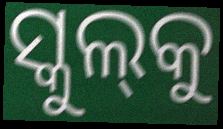
ସ୍କୁଲ୍‌କୁ